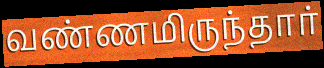
வண்ணமிருந்தார்